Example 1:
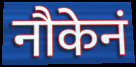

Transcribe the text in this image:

नौकेनं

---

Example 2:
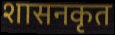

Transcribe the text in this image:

शासनकृत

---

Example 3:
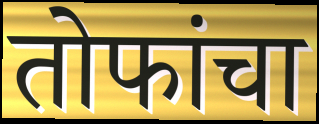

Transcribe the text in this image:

तोफांचा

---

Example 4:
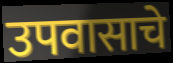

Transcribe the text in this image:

उपवासाचे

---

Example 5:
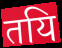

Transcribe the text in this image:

तयि